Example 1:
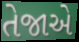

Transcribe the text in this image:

તેજાએ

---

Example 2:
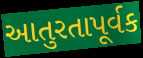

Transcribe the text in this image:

આતુરતાપૂર્વક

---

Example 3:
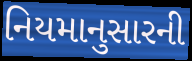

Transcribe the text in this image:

નિયમાનુસારની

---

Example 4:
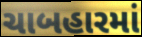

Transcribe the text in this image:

ચાબહારમાં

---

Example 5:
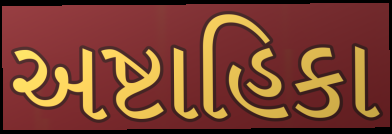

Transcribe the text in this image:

અષ્ટાહિકા